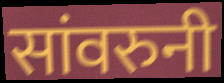
सांवरुनी